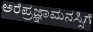
ಅರೆಪ್ರಜ್ಞಾಮನಸ್ಸಿಗೆ